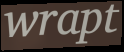
wrapt